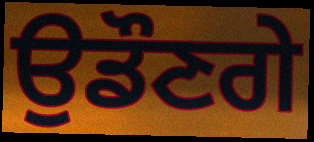
ਉਡੌਣਗੇ